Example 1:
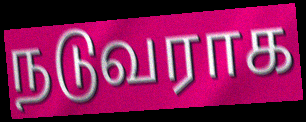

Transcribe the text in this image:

நடுவராக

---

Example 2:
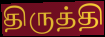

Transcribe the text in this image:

திருத்தி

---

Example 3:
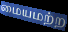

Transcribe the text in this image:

மையமற்ற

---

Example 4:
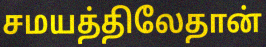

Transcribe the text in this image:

சமயத்திலேதான்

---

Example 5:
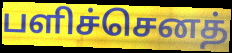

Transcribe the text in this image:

பளிச்செனத்